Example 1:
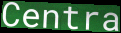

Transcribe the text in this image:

Centra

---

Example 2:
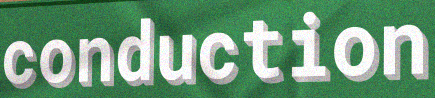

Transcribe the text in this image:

conduction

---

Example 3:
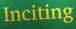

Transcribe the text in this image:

Inciting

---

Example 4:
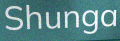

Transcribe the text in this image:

Shunga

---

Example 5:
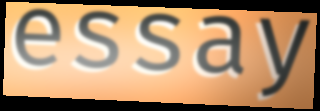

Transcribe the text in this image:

essay